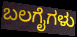
ಬಲಗೈಗಳು